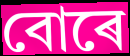
বোৰে